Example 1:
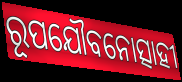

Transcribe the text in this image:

ରୂପଯୌବନୋତ୍ସାହୀ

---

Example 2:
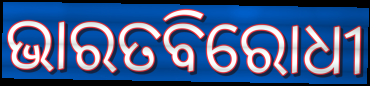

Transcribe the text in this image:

ଭାରତବିରୋଧୀ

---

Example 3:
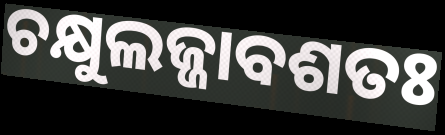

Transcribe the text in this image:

ଚକ୍ଷୁଲଜ୍ଜାବଶତଃ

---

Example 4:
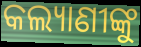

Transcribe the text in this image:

କଲ୍ୟାଣୀଙ୍କୁ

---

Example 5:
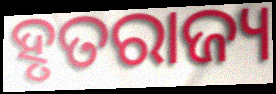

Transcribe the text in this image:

ହୃତରାଜ୍ୟ